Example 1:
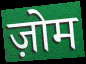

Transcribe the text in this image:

ज़ोम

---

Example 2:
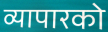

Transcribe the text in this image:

व्यापारको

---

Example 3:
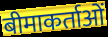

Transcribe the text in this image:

बीमाकर्ताओं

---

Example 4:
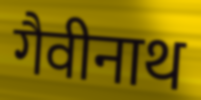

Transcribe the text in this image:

गैवीनाथ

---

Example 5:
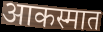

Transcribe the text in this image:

आकस्मात